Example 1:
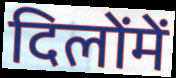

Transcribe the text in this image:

दिलोंमें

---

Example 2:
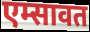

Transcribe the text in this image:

एम्सावत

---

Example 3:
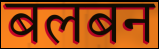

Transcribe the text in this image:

बलबन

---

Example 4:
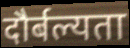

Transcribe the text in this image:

दौर्बल्यता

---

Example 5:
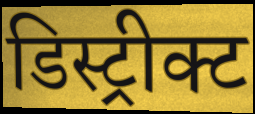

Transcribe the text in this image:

डिस्ट्रीक्ट